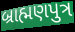
બ્રાહ્મણપુત્ર